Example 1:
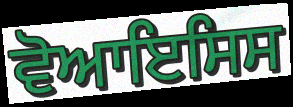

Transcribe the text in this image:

ਵੋਆਇਸਿਸ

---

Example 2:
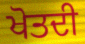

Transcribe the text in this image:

ਖੋਤਦੀ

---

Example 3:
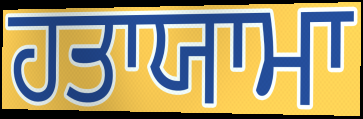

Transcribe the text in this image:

ਹਤਾਯਾਮਾ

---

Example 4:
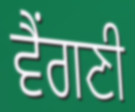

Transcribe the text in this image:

ਵੈਂਗਣੀ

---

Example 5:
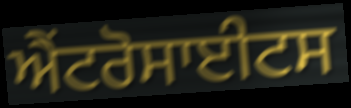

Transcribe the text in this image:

ਐਂਟਰੋਸਾਈਟਸ